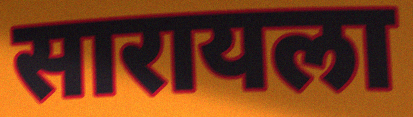
सारायला